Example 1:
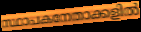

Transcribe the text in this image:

സ്ഥാപകനേതാക്കളിൽ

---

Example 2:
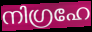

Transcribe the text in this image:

നിഗ്രഹേ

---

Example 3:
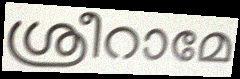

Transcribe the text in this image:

ശ്രീറാമേ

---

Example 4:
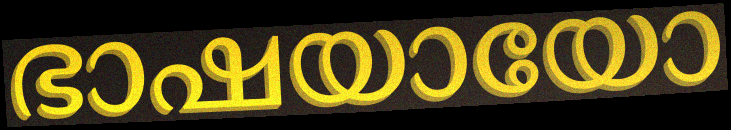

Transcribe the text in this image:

ഭാഷയായോ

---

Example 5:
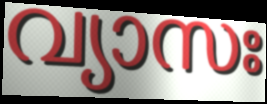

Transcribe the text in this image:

വ്യാസഃ